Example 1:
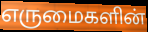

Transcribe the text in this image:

எருமைகளின்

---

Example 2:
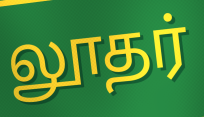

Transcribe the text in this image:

லூதர்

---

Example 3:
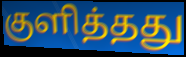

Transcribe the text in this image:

குளித்தது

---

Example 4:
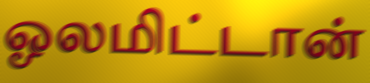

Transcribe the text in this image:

ஓலமிட்டான்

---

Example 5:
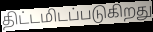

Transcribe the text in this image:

திட்டமிடப்படுகிறது